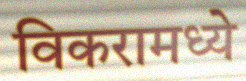
विकरामध्ये